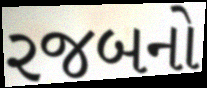
રજબનો